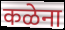
कळेना